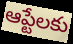
ఆప్టేలకు